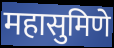
महासुमिणे